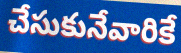
చేసుకునేవారికే